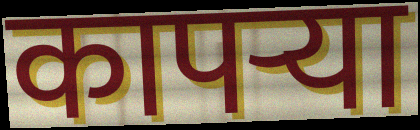
कापर्‍या